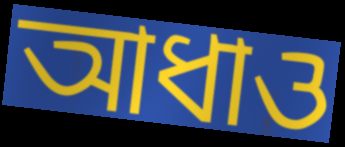
আধাও